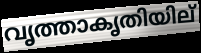
വൃത്താകൃതിയില്